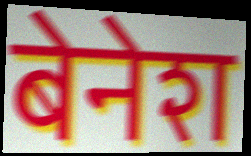
बेनेश